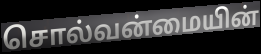
சொல்வன்மையின்